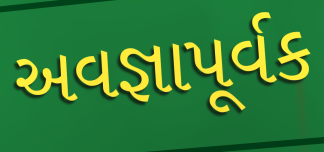
અવજ્ઞાપૂર્વક